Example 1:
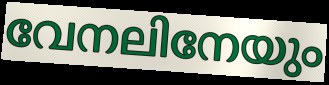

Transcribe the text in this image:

വേനലിനേയും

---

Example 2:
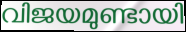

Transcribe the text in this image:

വിജയമുണ്ടായി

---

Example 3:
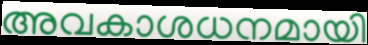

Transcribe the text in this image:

അവകാശധനമായി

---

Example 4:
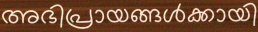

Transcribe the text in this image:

അഭിപ്രായങ്ങൾക്കായി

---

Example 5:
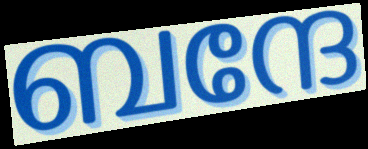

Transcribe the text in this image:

ബന്ദേ